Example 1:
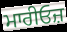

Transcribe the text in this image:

ਮਾਰੀਓਜ਼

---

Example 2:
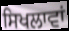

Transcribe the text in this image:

ਸਿਖਲਾਵਾਂ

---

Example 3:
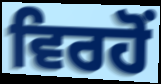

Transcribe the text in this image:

ਵਿਰਹੋਂ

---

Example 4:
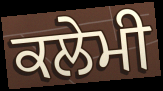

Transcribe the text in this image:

ਕਲੇਮੀ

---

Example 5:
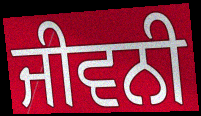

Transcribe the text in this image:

ਜੀਵਨੀ